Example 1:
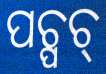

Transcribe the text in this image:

ପଚ୍ପଚ୍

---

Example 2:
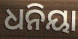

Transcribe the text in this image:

ଧନିୟା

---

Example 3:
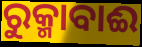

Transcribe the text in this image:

ରୁକ୍ମାବାଈ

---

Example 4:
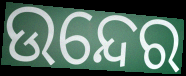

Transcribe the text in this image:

ଉନ୍ଦେର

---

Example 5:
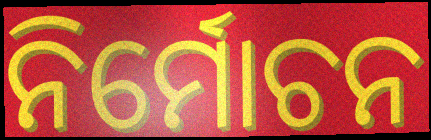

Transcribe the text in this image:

ନିର୍ମୋଚନ